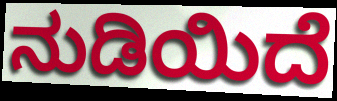
ನುಡಿಯಿದೆ